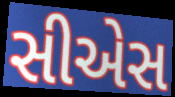
સીએસ